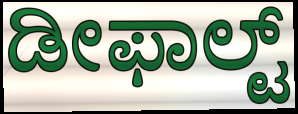
ಡೀಫಾಲ್ಟ್